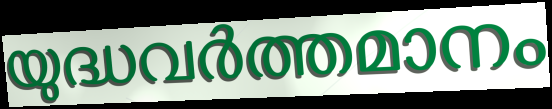
യുദ്ധവർത്തമാനം